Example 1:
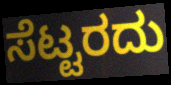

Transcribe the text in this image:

ಸೆಟ್ಟರದು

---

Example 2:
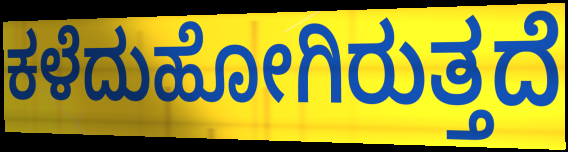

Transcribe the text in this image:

ಕಳೆದುಹೋಗಿರುತ್ತದೆ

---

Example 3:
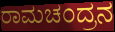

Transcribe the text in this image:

ರಾಮಚಂದ್ರನ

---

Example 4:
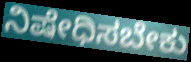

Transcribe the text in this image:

ನಿಷೇಧಿಸಬೇಕು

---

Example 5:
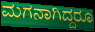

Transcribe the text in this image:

ಮಗನಾಗಿದ್ದರೂ